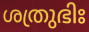
ശത്രുഭിഃ